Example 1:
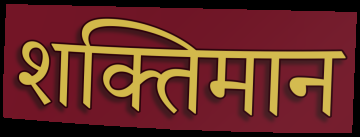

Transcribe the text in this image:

शक्तिमान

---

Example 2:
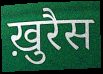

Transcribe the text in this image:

ख़ुरैस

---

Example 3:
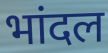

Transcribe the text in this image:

भांदल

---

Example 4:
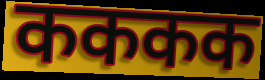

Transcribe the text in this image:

कककक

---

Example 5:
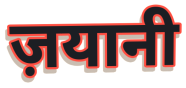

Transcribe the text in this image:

ज़यानी